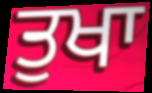
ਤੁਖਾ